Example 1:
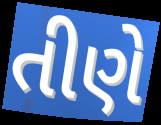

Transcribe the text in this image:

તીણે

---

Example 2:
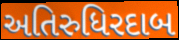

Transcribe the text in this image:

અતિરુધિરદાબ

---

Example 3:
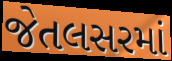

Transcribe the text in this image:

જેતલસરમાં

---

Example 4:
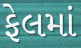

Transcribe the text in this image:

ફેલમાં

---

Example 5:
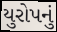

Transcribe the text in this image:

યુરોપનું